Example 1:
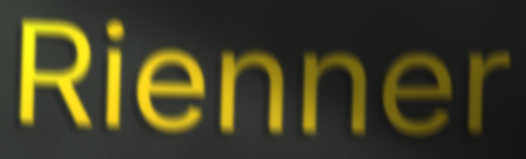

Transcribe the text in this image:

Rienner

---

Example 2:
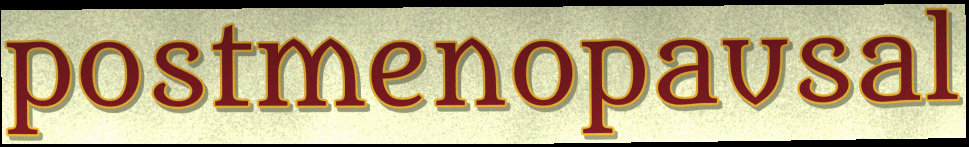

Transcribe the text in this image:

postmenopausal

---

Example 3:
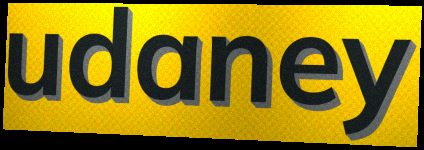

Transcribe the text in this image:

udaney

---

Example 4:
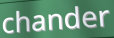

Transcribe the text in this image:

chander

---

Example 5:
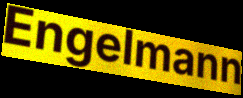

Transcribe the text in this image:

Engelmann